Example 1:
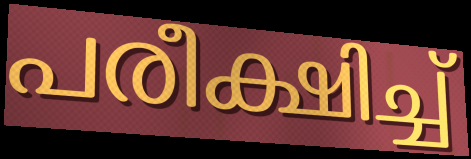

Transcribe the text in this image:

പരീക്ഷിച്ച്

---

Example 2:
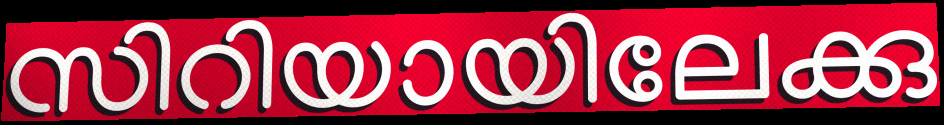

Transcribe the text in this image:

സിറിയായിലേക്കു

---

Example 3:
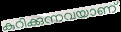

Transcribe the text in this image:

കുറിക്കുന്നവയാണ്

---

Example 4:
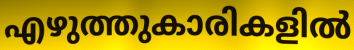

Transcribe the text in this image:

എഴുത്തുകാരികളിൽ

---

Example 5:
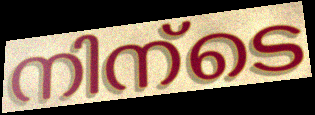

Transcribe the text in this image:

നിന്ടെ